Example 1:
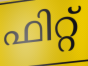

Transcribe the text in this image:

ഫിറ്റ്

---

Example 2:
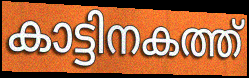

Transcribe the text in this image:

കാട്ടിനകത്ത്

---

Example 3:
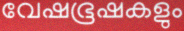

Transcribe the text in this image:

വേഷഭൂഷകളും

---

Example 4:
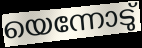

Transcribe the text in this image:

യെന്നോടു്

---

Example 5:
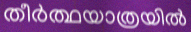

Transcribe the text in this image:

തീർത്ഥയാത്രയിൽ